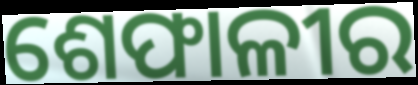
ଶେଫାଳୀର